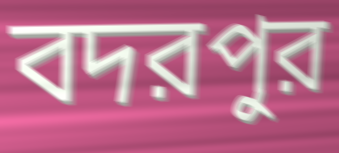
বদরপুর